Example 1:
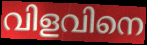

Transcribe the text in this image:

വിളവിനെ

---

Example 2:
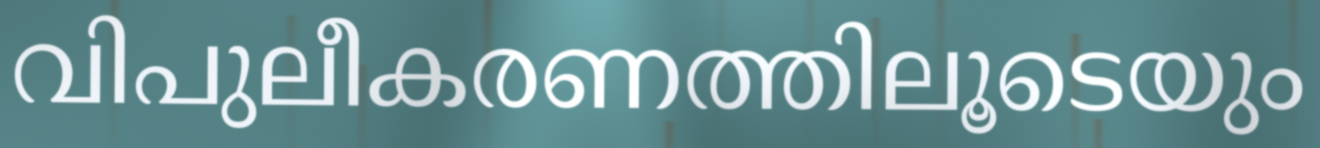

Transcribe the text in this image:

വിപുലീകരണത്തിലൂടെയും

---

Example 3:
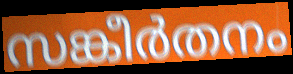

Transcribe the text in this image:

സങ്കീർതനം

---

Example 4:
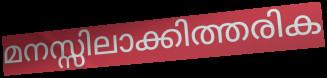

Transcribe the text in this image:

മനസ്സിലാക്കിത്തരിക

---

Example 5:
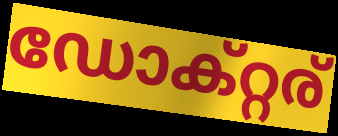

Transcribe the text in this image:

ഡോക്റ്റര്